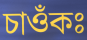
চাওঁকঃ